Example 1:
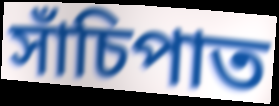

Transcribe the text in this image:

সাঁচিপাত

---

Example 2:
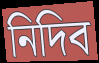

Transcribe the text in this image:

নিদিব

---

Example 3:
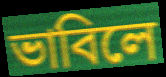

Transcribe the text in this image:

ভাবিলে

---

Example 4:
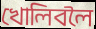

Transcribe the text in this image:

খোলিবলৈ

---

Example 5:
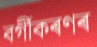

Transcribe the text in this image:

বৰ্গীকৰণৰ